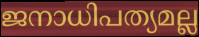
ജനാധിപത്യമല്ല